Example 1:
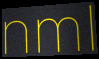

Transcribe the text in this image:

nml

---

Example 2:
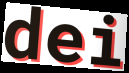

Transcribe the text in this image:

dei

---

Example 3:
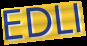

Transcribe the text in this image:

EDLI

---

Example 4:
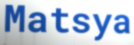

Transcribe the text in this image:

Matsya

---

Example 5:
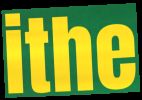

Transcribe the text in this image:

ithe